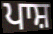
ਪਾਸ਼